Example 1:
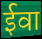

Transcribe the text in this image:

ईवा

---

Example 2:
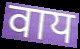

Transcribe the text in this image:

वाय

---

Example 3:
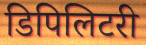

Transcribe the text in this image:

डिपिलिटरी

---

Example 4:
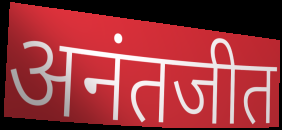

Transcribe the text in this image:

अनंतजीत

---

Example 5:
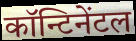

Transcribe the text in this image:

कॉन्टिनेंटल